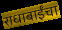
राधाबाईंचा